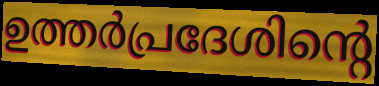
ഉത്തർപ്രദേശിന്റെ